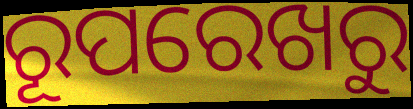
ରୂପରେଖରୁ